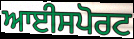
ਆਈਸਪੋਰਟ